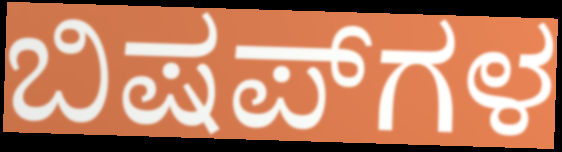
ಬಿಷಪ್‌ಗಳ